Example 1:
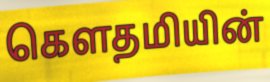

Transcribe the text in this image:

கெளதமியின்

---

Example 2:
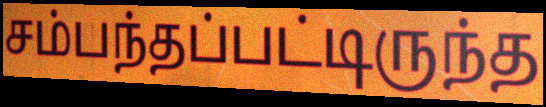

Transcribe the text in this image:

சம்பந்தப்பட்டிருந்த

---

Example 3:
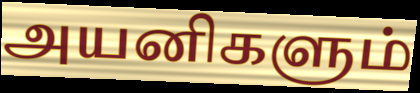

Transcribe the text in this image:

அயனிகளும்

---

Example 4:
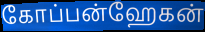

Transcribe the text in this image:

கோப்பன்ஹேகன்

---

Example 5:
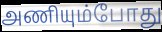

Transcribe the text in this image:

அணியும்போது